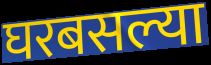
घरबसल्या